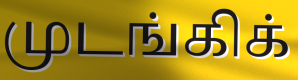
முடங்கிக்